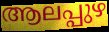
ആലപ്പുഴ